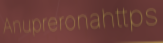
Anupreronahttps